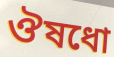
ঔষধো